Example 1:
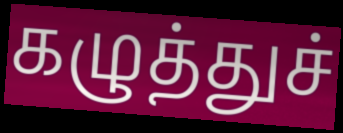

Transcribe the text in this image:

கழுத்துச்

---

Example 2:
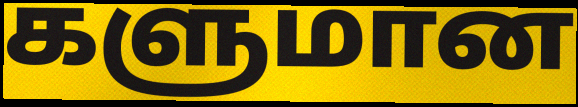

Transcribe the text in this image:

களுமான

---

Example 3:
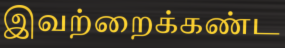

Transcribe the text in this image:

இவற்றைக்கண்ட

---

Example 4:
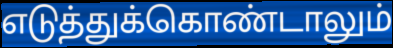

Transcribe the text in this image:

எடுத்துக்கொண்டாலும்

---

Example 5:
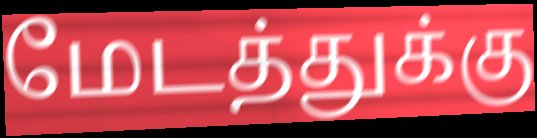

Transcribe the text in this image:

மேடத்துக்கு